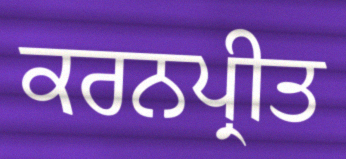
ਕਰਨਪ੍ਰੀਤ